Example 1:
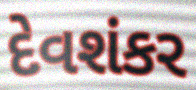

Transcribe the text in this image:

દેવશંકર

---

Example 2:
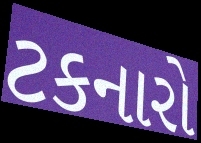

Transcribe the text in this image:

ટકનારો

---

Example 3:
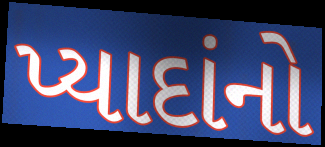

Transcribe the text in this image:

પ્યાદાંનો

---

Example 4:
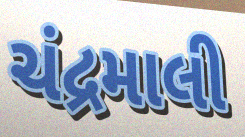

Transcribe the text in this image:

ચંદ્રમાલી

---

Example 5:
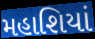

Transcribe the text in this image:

મહાશિયાં